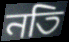
নতি